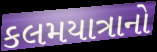
કલમયાત્રાનો